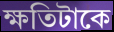
ক্ষতিটাকে